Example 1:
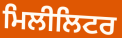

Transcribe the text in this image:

ਮਿਲੀਲਿਟਰ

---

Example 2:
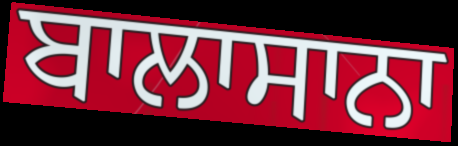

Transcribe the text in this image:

ਬਾਲਾਸਾਨਾ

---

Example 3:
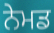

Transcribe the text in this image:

ਨੇਮਡ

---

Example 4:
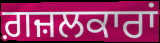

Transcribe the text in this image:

ਗ਼ਜ਼ਲਕਾਰਾਂ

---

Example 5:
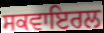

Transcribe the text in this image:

ਸਕਵਾਇਰਲ